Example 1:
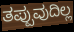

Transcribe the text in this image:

ತಪ್ಪುವುದಿಲ್ಲ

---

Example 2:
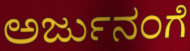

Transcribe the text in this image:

ಅರ್ಜುನಂಗೆ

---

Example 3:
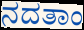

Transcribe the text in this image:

ನದತಾಂ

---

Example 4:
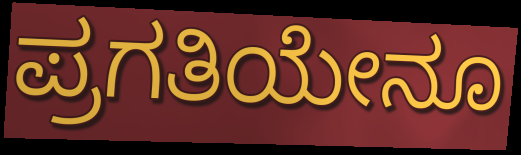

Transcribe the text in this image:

ಪ್ರಗತಿಯೇನೂ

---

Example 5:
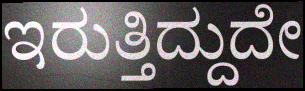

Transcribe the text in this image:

ಇರುತ್ತಿದ್ದುದೇ